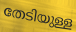
തേടിയുള്ള